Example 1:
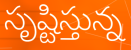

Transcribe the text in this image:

సృష్టిస్తున్న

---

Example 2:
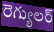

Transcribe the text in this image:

రెగ్యులర్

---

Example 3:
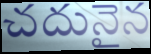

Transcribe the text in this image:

చదునైన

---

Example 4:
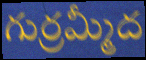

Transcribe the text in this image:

గుర్రమ్మీద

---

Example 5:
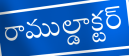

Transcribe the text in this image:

రాముల్డాక్టర్